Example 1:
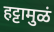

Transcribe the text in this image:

हट्टामुळं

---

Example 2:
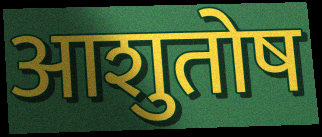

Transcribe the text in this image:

आशुतोष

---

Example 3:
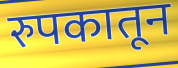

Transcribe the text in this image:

रुपकातून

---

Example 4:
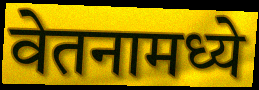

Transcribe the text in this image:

वेतनामध्ये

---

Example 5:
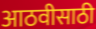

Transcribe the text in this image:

आठवीसाठी